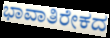
ಭಾವಾತಿರೇಕದ